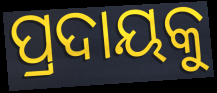
ପ୍ରଦାୟକୁ